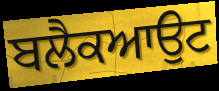
ਬਲੈਕਆਉਟ